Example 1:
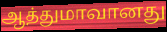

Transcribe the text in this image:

ஆத்துமாவானது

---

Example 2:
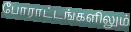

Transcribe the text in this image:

போராட்டங்களிலும்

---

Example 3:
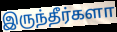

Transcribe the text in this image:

இருந்தீர்களா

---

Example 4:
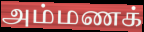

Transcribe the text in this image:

அம்மணக்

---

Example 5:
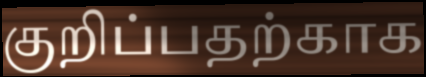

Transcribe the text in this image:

குறிப்பதற்காக